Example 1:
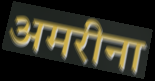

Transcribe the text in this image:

अमरीना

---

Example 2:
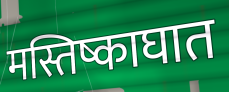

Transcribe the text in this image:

मस्तिष्काघात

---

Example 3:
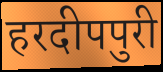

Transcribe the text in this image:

हरदीपपुरी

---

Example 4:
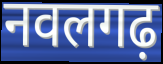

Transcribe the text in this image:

नवलगढ़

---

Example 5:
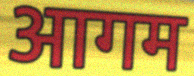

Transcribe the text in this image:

आगम